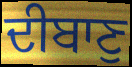
ਦੀਬਾਣੁ